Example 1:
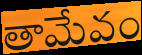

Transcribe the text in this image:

తామేవం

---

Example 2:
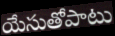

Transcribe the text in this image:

యేసుతోపాటు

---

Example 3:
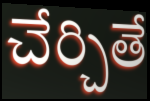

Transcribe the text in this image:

చేర్చితే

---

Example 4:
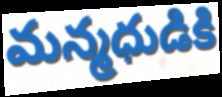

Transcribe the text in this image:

మన్మధుడికి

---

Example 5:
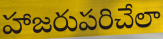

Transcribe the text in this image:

హాజరుపరిచేలా